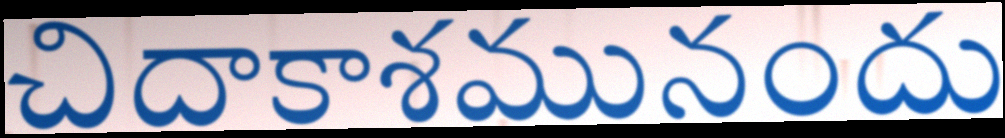
చిదాకాశమునందు